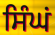
ਸਿੰਘਂ